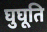
घुघूति